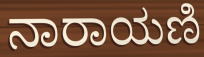
ನಾರಾಯಣಿ